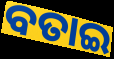
ବତାଇ